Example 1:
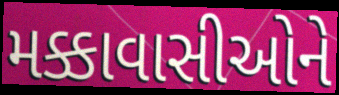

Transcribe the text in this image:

મક્કાવાસીઓને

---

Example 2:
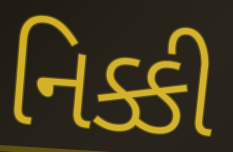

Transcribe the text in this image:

નિક્કી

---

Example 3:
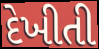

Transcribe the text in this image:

દેખીતી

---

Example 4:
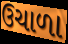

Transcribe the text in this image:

ઉચાળા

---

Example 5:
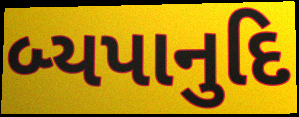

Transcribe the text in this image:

બ્યપાનુદિ